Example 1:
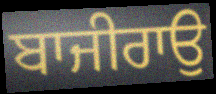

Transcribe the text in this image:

ਬਾਜੀਰਾਉ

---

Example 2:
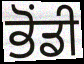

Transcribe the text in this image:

ਭੋਂਡੀ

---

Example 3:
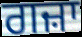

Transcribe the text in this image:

ਗਜ਼ਾ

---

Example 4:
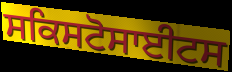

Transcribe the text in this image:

ਸਕਿਸਟੋਸਾਈਟਸ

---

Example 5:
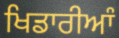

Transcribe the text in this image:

ਖਿਡਾਰੀਆੰ